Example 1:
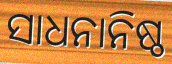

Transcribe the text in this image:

ସାଧନାନିଷ୍ଠ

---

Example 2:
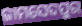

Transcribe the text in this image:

ଜାମସେଦପୁର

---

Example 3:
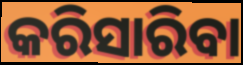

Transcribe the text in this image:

କରିସାରିବା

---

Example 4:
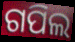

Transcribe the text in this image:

ଗପିଲ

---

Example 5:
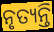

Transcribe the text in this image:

ନୃତ୍ୟନ୍ତି